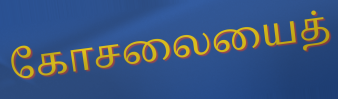
கோசலையைத்